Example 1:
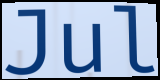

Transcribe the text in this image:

Jul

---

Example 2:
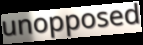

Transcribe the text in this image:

unopposed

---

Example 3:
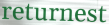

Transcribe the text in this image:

returnest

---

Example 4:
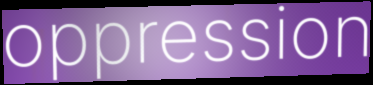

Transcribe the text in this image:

oppression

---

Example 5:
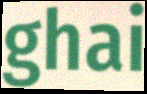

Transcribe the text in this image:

ghai